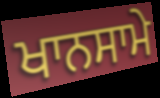
ਖਾਨਸਾਮੇ